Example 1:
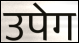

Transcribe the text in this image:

उपेग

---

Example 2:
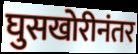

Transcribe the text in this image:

घुसखोरीनंतर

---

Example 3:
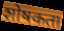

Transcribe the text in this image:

शोषकता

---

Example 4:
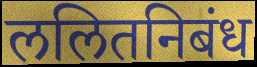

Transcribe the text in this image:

ललितनिबंध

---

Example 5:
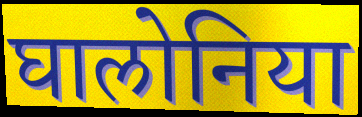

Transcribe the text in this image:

घालोनिया